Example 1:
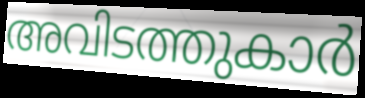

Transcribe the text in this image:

അവിടത്തുകാർ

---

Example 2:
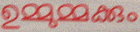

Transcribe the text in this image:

ഉമ്മുമ്മക്കും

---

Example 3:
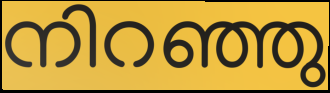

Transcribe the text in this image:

നിറഞ്ഞു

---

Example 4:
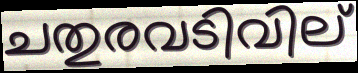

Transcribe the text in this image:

ചതുരവടിവില്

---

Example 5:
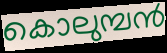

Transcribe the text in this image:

കൊലുമ്പൻ